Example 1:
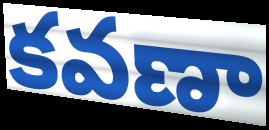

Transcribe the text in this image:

కవణా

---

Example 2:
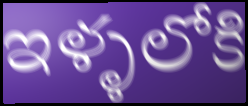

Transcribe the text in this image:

ఇళ్ళలోకి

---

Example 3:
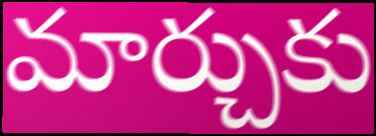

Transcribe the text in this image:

మార్చుకు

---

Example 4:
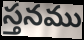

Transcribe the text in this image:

స్తనము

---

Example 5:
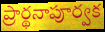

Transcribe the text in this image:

ప్రార్థనాపూర్వక